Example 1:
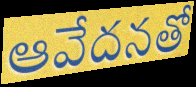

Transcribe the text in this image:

ఆవేదనతో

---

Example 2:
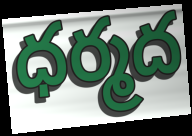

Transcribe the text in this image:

ధర్మద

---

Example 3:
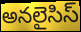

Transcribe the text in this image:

అనలైసిస్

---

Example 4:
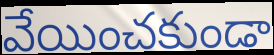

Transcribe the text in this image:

వేయించకుండా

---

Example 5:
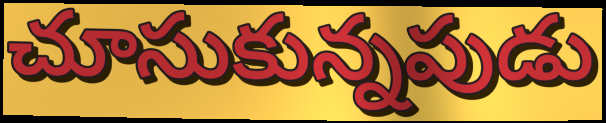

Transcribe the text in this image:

చూసుకున్నపుడు